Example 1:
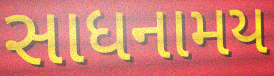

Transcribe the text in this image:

સાધનામય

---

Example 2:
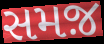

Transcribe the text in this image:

સમજ઼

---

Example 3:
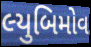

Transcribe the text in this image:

લ્યુબિમોવ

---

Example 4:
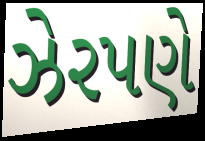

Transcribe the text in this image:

ઝેરપણે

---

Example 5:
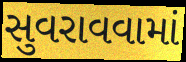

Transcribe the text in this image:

સુવરાવવામાં